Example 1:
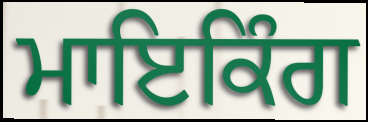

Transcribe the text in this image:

ਮਾਇਕਿੰਗ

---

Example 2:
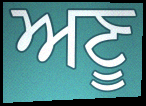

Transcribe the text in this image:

ਅਣੂ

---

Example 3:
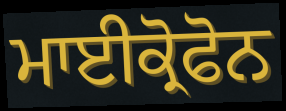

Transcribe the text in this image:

ਮਾਈਕ੍ਰੋਫੋਨ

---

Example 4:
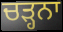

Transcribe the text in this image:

ਚੜ੍ਹਨਾ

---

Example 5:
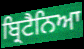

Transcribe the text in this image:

ਬ੍ਰਿਟੈਨਿਆ